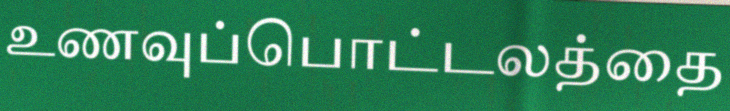
உணவுப்பொட்டலத்தை